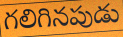
గలిగినపుడు